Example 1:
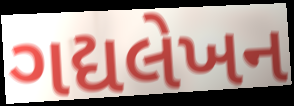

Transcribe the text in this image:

ગદ્યલેખન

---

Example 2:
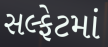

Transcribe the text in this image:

સલ્ફેટમાં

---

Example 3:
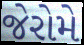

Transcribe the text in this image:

જેરોમે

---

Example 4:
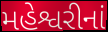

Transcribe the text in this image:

મહેશ્વરીનાં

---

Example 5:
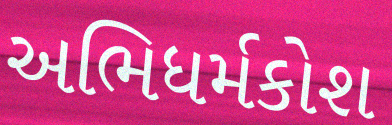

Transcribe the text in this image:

અભિધર્મકોશ